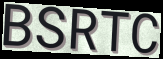
BSRTC